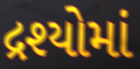
દ્રશ્યોમાં